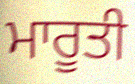
ਮਾਰੂਤੀ